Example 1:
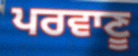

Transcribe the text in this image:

ਪਰਵਾਣੂ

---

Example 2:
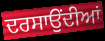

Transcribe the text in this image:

ਦਰਸਾਉਂਦੀਆਂ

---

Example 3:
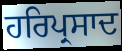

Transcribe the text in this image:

ਹਰਿਪ੍ਰਸਾਦ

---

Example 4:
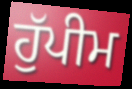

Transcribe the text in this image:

ਹੁੱਪੀਮ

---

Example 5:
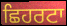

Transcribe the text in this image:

ਛਿਹਰਟਾ